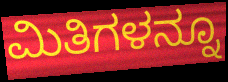
ಮಿತಿಗಳನ್ನೂ